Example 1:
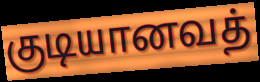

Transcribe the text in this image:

குடியானவத்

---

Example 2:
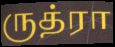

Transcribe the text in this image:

ருத்ரா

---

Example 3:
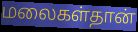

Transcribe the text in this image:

மலைகள்தான்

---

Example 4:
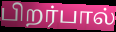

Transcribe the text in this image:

பிறர்பால்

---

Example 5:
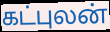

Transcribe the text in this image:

கட்புலன்